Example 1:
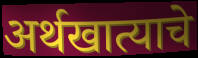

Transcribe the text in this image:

अर्थखात्याचे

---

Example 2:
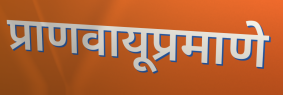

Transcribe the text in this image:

प्राणवायूप्रमाणे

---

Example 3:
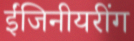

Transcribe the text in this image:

ईंजिनीयरींग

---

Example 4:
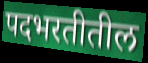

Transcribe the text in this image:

पदभरतीतील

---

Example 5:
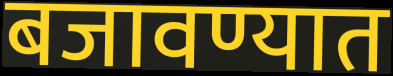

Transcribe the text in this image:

बजावण्यात